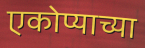
एकोप्याच्या